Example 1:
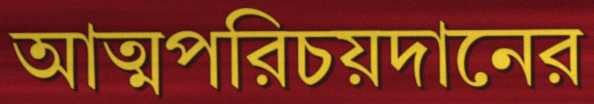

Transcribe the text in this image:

আত্মপরিচয়দানের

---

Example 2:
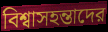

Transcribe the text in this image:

বিশ্বাসহন্তাদের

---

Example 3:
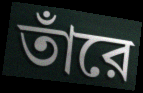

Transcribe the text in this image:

তাঁরে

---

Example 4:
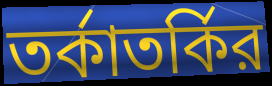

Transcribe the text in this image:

তর্কাতর্কির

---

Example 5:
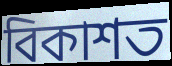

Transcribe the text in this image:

বিকাশত